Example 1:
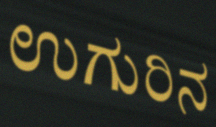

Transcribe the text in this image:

ಉಗುರಿನ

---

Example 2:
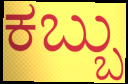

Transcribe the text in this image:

ಕಬ್ಬು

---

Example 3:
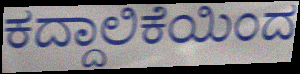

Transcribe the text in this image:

ಕದ್ದಾಲಿಕೆಯಿಂದ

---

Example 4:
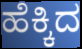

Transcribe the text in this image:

ಹೆಕ್ಕಿದ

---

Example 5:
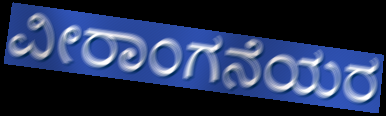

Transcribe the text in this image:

ವೀರಾಂಗನೆಯರ